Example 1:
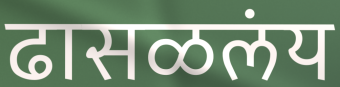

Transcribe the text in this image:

ढासळलंय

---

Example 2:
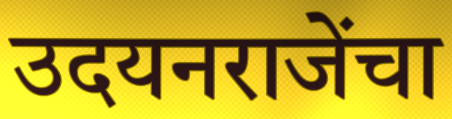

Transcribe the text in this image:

उदयनराजेंचा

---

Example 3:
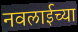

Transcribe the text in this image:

नवलाईच्या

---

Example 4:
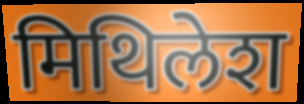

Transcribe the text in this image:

मिथिलेश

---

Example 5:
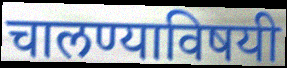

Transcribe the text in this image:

चालण्याविषयी